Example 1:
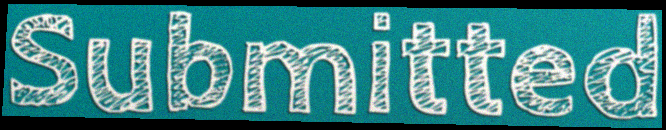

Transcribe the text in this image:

Submitted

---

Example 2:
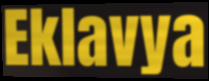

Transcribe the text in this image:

Eklavya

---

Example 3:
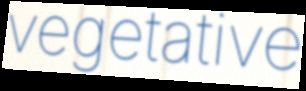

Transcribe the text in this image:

vegetative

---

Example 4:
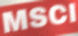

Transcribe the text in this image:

MSCI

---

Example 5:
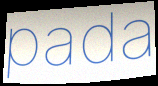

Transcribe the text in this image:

pada